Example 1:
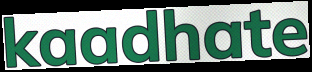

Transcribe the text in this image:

kaadhate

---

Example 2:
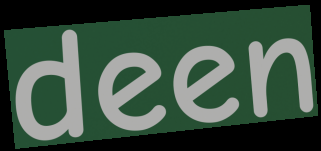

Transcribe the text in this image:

deen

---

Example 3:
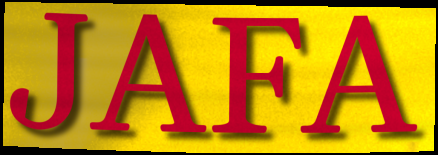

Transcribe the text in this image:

JAFA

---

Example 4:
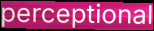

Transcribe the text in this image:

perceptional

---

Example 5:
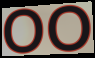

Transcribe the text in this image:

OO